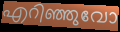
എറിഞ്ഞുവോ